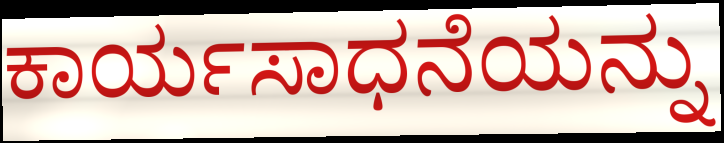
ಕಾರ್ಯಸಾಧನೆಯನ್ನು